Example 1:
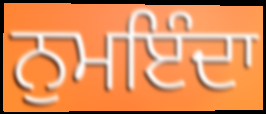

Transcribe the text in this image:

ਨੁਮਇੰਦਾ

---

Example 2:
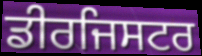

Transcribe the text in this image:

ਡੀਰਜਿਸਟਰ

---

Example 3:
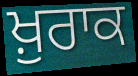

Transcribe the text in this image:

ਖ਼ੁਰਾਕ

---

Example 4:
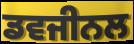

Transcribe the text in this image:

ਡਵਜੀਨਲ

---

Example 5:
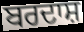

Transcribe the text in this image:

ਬਰਦਾਸ਼